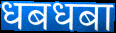
धबधबा